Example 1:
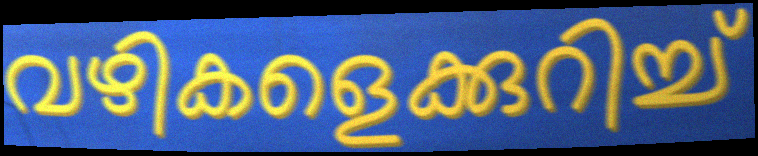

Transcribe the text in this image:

വഴികളെക്കുറിച്ച്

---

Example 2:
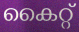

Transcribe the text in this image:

കൈറ്റ്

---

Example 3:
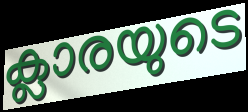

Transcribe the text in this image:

ക്ലാരയുടെ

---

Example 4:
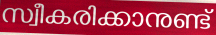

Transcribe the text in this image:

സ്വീകരിക്കാനുണ്ട്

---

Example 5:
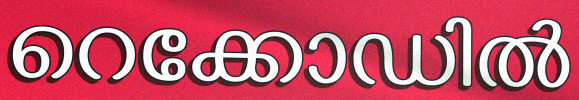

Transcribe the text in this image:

റെക്കോഡിൽ